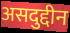
असदुद्दीन